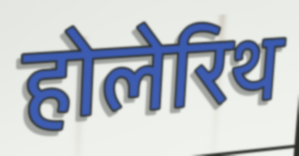
होलेरिथ